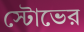
স্টোভের